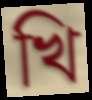
খি